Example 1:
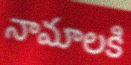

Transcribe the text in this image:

నామాలకి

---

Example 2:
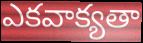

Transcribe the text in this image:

ఎకవాక్యతా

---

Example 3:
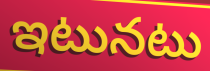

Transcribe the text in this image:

ఇటునటు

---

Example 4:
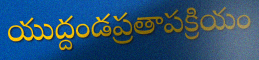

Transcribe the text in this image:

యుద్దండప్రతాపక్రియం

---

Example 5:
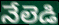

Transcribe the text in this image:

నేలెడి